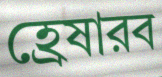
হ্রেষারব